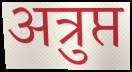
अत्रुप्त